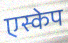
एस्केप